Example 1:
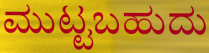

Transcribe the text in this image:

ಮುಟ್ಟಬಹುದು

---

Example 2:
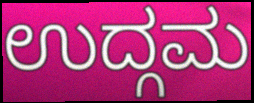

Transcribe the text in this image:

ಉದ್ಗಮ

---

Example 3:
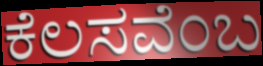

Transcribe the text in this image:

ಕೆಲಸವೆಂಬ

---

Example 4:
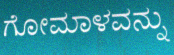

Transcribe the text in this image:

ಗೋಮಾಳವನ್ನು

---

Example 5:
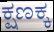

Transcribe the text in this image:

ಕ್ಷಣಕ್ಕ